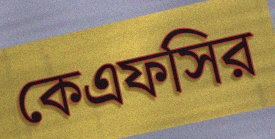
কেএফসির